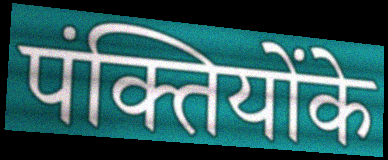
पंक्तियोंके